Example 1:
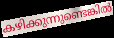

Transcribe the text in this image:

കഴിക്കുന്നുണ്ടെങ്കിൽ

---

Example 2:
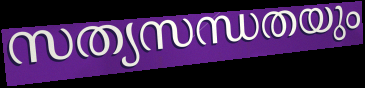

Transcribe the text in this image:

സത്യസന്ധതയും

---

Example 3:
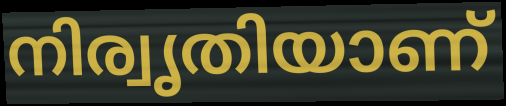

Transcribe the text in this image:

നിര്വൃതിയാണ്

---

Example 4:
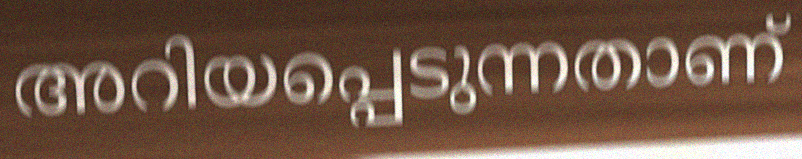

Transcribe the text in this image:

അറിയപ്പെടുന്നതാണ്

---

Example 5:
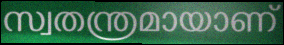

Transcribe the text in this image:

സ്വതന്ത്രമായാണ്